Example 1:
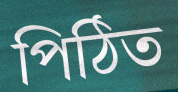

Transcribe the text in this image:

পিঠিত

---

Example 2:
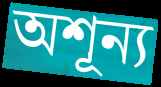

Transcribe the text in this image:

অশূন্য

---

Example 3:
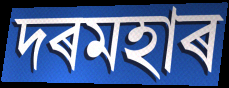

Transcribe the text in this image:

দৰমহাৰ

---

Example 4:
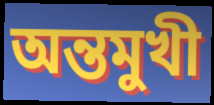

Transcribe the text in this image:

অন্তমুখী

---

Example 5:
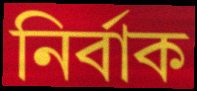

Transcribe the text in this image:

নিৰ্বাক